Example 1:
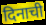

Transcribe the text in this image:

दिनाची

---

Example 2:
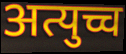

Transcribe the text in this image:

अत्युच्च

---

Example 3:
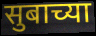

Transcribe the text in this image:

सुबाच्या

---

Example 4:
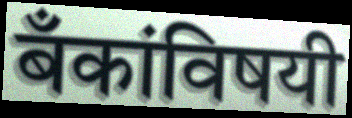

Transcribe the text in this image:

बँकांविषयी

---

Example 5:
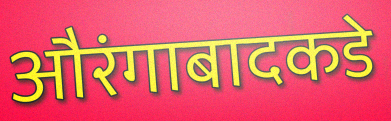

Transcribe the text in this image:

औरंगाबादकडे